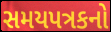
સમયપત્રકનો